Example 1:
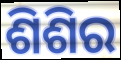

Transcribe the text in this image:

ଶିଶିର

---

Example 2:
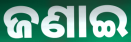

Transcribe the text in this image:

ଜଣାଇ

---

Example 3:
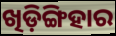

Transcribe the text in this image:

ଖିଡ଼ିଙ୍ଗିହାର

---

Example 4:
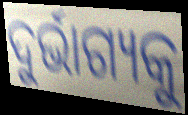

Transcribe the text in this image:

ଦୁର୍ଭାଗ୍ୟକୁ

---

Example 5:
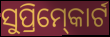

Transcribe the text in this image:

ସୁପ୍ରିମ୍‍କୋର୍ଟ